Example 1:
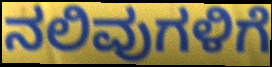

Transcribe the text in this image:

ನಲಿವುಗಳಿಗೆ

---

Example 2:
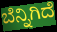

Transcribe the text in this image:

ಬೆನ್ನಿಗಿದೆ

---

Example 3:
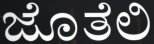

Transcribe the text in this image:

ಜೊತೆಲಿ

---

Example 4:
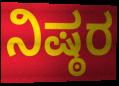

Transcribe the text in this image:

ನಿಷ್ಠರ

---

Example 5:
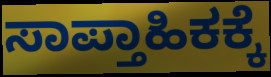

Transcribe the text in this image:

ಸಾಪ್ತಾಹಿಕಕ್ಕೆ